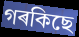
গৰকিছে